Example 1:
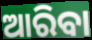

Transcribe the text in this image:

ଆରିବା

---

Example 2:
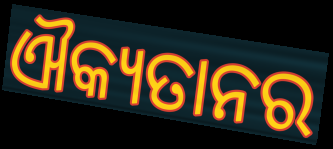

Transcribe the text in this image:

ଐକ୍ୟତାନର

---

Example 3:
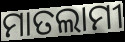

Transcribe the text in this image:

ମାତଲାମୀ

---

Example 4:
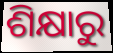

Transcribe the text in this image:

ଶିକ୍ଷାରୁ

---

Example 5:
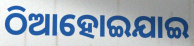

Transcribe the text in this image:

ଠିଆହୋଇଯାଇ